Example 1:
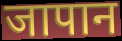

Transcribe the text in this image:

जापान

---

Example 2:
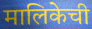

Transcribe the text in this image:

मालिकेची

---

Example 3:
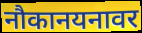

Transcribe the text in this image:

नौकानयनावर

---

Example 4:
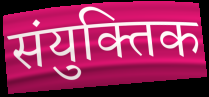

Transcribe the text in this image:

संयुक्‍तिक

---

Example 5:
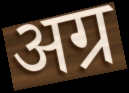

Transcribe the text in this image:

अग्र